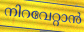
നിറവേറ്റാൻ